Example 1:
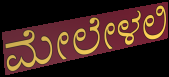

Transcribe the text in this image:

ಮೇಲೇಳಲಿ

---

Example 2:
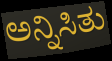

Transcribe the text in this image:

ಅನ್ನಿಸಿತು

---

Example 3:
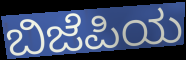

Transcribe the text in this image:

ಬಿಜೆಪಿಯ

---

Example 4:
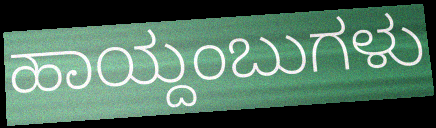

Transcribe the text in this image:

ಹಾಯ್ದಂಬುಗಳು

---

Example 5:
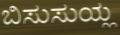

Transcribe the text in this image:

ಬಿಸುಸುಯ್ಲ